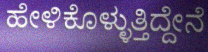
ಹೇಳಿಕೊಳ್ಳುತ್ತಿದ್ದೇನೆ